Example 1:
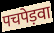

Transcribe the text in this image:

पचपेड़वा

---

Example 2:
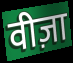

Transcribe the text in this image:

वीज़ा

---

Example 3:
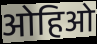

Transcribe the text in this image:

ओहिओ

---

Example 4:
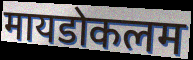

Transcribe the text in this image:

मायडोकलम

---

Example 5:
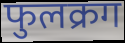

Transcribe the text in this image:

फुलक्रग